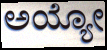
ಅಯ್ಯೋ